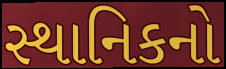
સ્થાનિકનો